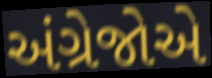
અંગ્રેજોએ